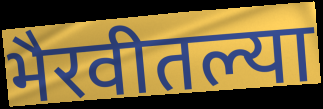
भैरवीतल्या